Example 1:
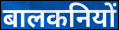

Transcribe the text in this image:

बालकनियों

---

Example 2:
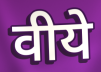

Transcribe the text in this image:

वीये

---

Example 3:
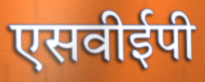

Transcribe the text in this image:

एसवीईपी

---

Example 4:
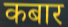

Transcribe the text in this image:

कबार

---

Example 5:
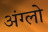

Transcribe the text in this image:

अंग्लो